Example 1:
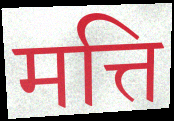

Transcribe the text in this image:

मत्ति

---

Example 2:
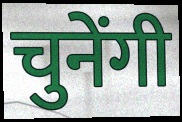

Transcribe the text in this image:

चुनेंगी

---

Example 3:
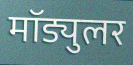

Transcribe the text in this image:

मॉड्युलर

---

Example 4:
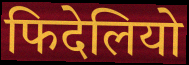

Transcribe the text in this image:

फिदेलियो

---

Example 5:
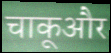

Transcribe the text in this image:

चाकूऔर